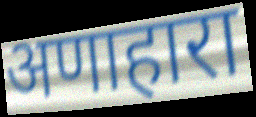
अणाहारा